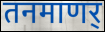
तनमाणर्